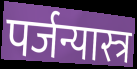
पर्जन्यास्त्र